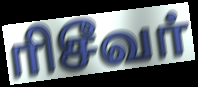
ரிசீவர்